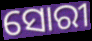
ସୋରୀ